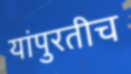
यांपुरतीच